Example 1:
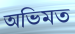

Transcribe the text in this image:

অভিমত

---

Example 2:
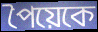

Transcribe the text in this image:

পৈয়েকে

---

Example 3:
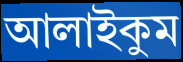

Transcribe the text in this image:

আলাইকুম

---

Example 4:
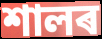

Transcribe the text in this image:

শালৰ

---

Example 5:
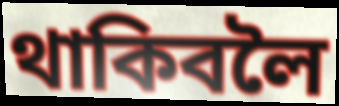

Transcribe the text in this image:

থাকিবলৈ